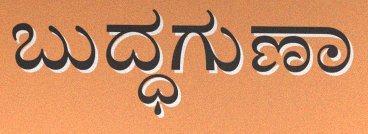
ಬುದ್ಧಗುಣಾ